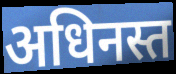
अधिनस्त